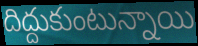
దిద్దుకుంటున్నాయి